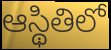
ఆస్థితిలో